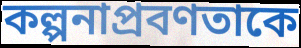
কল্পনাপ্রবণতাকে